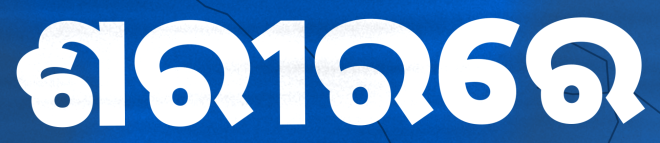
ଶରୀରରେ